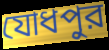
যোধপুর